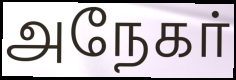
அநேகர்